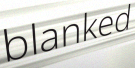
blanked